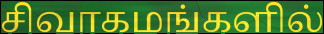
சிவாகமங்களில்